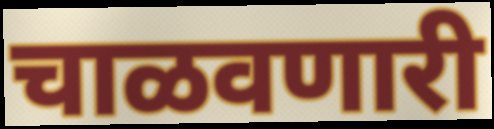
चाळवणारी